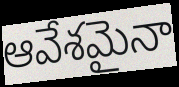
ఆవేశమైనా